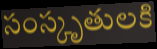
సంస్కృతులకి